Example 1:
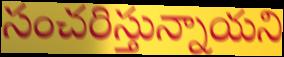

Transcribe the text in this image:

సంచరిస్తున్నాయని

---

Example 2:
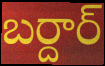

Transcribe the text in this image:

బర్దార్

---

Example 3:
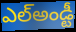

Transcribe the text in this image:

ఎల్అండ్టీ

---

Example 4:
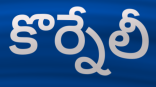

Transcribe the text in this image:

కొర్నేలీ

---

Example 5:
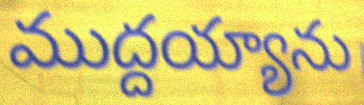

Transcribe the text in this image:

ముద్దయ్యాను